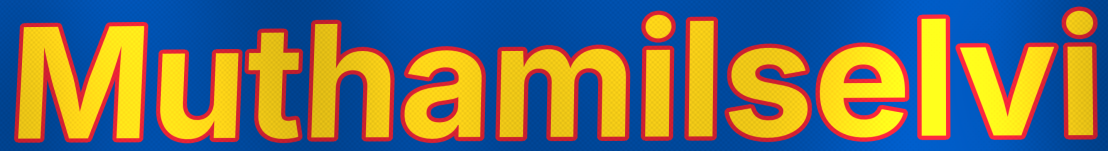
Muthamilselvi